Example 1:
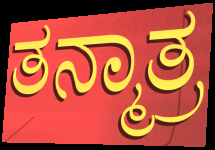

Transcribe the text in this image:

ತನ್ಮಾತ್ರ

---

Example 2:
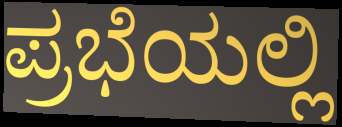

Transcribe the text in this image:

ಪ್ರಭೆಯಲ್ಲಿ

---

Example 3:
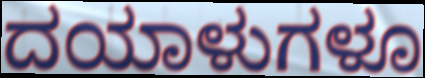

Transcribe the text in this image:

ದಯಾಳುಗಳೂ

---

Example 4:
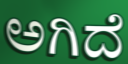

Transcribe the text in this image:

ಅಗಿದೆ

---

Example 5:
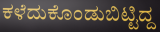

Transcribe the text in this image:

ಕಳೆದುಕೊಂಡುಬಿಟ್ಟಿದ್ದ